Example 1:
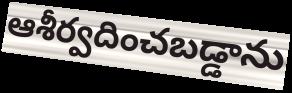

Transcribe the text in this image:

ఆశీర్వదించబడ్డాను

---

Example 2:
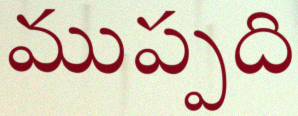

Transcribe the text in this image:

ముప్పది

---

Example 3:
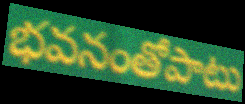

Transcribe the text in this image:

భవనంతోపాటు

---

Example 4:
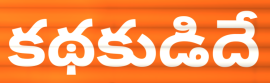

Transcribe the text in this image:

కథకుడిదే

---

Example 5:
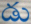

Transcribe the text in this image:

డు